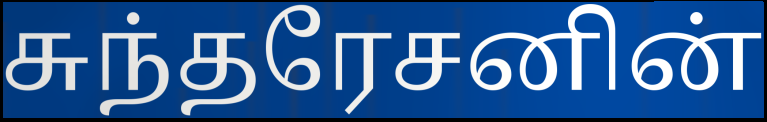
சுந்தரேசனின்